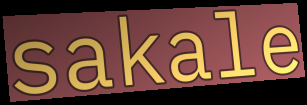
sakale